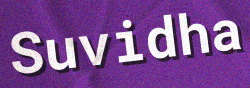
Suvidha